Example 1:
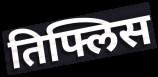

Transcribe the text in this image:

तिफ्लिस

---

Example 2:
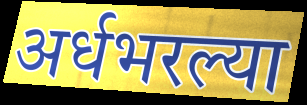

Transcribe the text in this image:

अर्धभरल्या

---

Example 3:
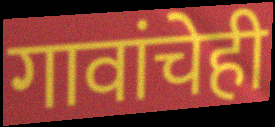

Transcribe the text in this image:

गावांचेही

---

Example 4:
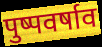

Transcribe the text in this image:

पुष्पवर्षाव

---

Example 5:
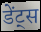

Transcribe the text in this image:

डेंट्स